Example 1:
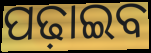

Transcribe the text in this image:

ପଢ଼ାଇବ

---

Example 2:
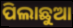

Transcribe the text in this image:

ପିଲାଛୁଆ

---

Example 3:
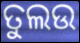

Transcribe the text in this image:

ତୁଲଉ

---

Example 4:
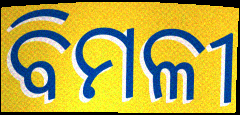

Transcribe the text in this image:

ବିମଳୀ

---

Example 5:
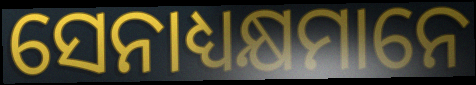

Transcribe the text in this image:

ସେନାଧ୍ୟକ୍ଷମାନେ